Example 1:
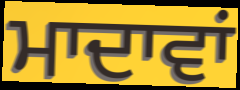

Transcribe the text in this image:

ਮਾਦਾਵਾਂ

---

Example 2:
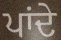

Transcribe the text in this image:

ਪਾਂਦੇ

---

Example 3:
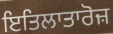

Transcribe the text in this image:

ਇਤਿਲਾਤਾਰੋਜ਼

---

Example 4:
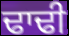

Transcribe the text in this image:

ਢਾਢੀ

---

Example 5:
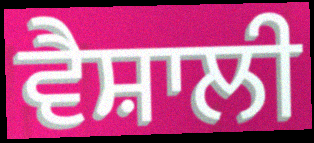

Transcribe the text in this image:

ਵੈਸ਼ਾਲੀ